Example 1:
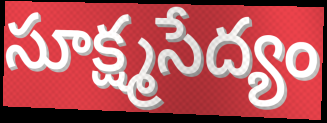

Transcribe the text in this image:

సూక్ష్మసేద్యం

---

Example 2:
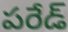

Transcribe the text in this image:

పరేడ్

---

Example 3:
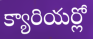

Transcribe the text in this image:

క్యారియర్లో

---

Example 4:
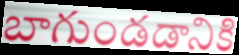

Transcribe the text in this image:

బాగుండడానికి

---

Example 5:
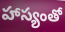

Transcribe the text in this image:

హాస్యంతో